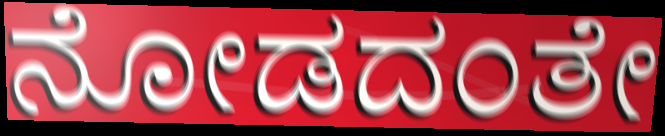
ನೋಡದಂತೇ